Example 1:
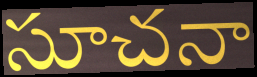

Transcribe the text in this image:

సూచనా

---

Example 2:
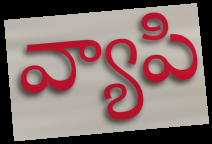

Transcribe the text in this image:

వ్యాపి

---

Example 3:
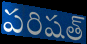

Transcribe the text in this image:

పరిషత్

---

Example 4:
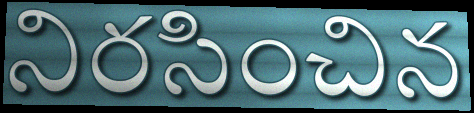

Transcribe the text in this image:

నిరసించిన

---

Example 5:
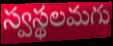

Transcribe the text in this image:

స్వస్థలమగు